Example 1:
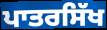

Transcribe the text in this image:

ਪਾਤਰਸਿੱਖ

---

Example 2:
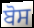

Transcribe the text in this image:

ਬੋਸ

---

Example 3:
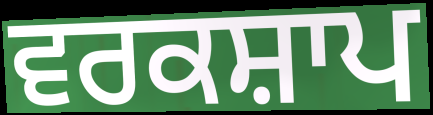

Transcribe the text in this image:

ਵਰਕਸ਼ਾਪ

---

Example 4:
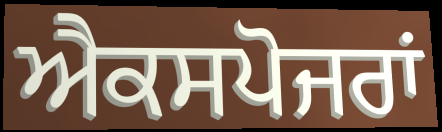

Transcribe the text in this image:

ਐਕਸਪੋਜਰਾਂ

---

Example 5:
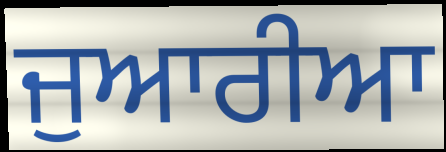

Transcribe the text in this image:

ਜੁਆਰੀਆ